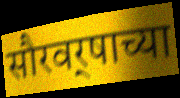
सौरवर्षाच्या